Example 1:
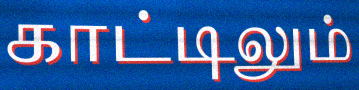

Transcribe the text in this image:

காட்டிலும்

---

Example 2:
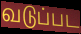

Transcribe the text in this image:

வடுப்பட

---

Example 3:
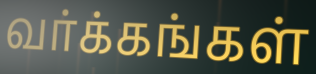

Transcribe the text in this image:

வர்க்கங்கள்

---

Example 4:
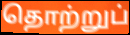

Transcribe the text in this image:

தொற்றுப்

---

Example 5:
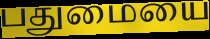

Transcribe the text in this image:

பதுமையை